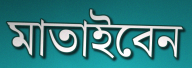
মাতাইবেন